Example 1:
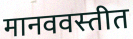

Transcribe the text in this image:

मानववस्तीत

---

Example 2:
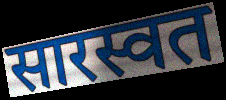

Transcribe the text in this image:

सारस्वत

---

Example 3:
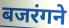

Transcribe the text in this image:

बजरंगने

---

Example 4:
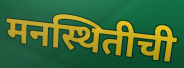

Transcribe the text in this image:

मनस्थितीची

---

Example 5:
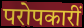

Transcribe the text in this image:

परोपकारीं